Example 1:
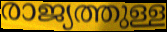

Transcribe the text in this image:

രാജ്യത്തുള്ള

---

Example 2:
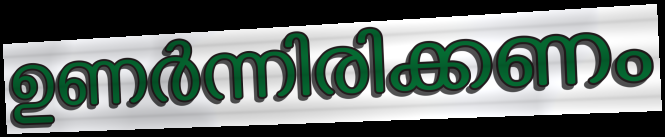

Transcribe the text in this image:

ഉണർന്നിരിക്കണം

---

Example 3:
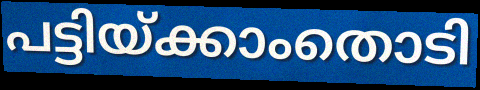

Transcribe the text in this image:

പട്ടിയ്ക്കാംതൊടി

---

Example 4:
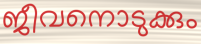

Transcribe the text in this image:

ജീവനൊടുക്കും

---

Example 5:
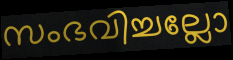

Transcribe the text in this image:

സംഭവിച്ചല്ലോ